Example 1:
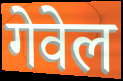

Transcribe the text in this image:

गेवेल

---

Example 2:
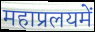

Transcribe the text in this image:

महाप्रलयमें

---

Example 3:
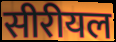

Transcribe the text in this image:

सीरीयल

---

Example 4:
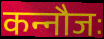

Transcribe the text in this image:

कन्नौजः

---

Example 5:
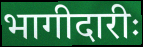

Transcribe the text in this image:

भागीदारीः